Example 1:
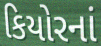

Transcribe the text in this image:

કિયોરનાં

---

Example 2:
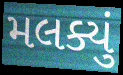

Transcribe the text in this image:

મલક્યું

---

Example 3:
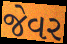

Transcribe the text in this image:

જેવર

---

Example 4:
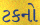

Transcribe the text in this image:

ટકનો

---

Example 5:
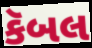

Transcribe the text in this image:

કૅબલ